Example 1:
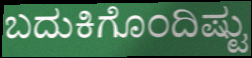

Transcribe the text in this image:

ಬದುಕಿಗೊಂದಿಷ್ಟು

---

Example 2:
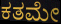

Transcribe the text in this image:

ಕತಮೇ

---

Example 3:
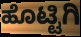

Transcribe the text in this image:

ಹೊಟ್ಟಿಗಿ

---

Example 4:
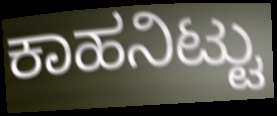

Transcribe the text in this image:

ಕಾಹನಿಟ್ಟು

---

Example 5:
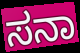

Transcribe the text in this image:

ಸನಾ